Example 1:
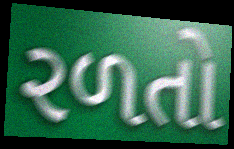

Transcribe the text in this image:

રળતો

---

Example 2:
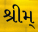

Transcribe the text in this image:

શ્રીમ્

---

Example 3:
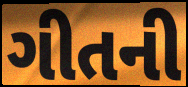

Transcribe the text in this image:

ગીતની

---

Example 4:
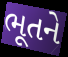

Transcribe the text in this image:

ભૂતને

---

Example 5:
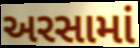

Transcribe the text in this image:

અરસામાં